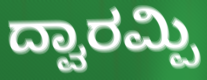
ದ್ವಾರಮ್ಪಿ